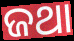
ଜଥା